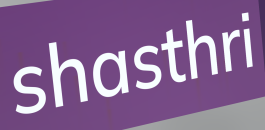
shasthri